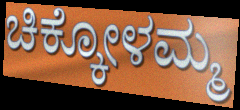
ಚಿಕ್ಕೋಳಮ್ಮ